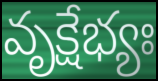
వృక్షేభ్యః